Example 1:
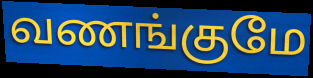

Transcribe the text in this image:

வணங்குமே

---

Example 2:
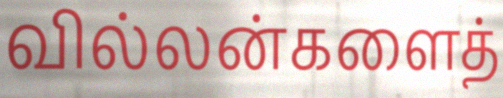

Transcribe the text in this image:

வில்லன்களைத்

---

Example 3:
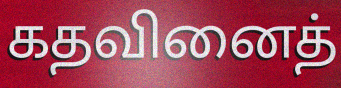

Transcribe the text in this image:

கதவினைத்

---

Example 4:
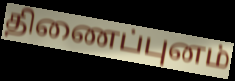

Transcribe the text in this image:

திணைப்புனம்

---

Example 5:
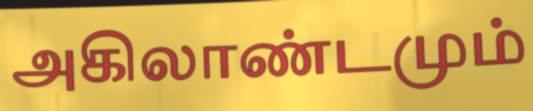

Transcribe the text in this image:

அகிலாண்டமும்